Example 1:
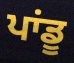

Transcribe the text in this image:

ਪਾਂਡੂ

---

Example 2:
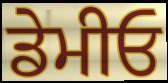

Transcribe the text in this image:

ਡੇਮੀਓ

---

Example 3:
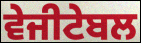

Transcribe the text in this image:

ਵੇਜੀਟੇਬਲ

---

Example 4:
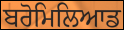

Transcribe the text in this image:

ਬਰੋਮਿਲਿਆਡ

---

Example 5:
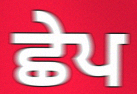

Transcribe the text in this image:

ਛੇਪ